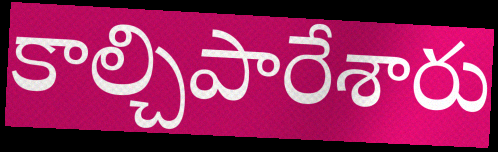
కాల్చిపారేశారు